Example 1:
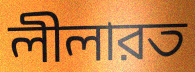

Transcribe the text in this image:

লীলারত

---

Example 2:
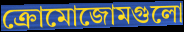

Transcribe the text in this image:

ক্রোমোজোমগুলো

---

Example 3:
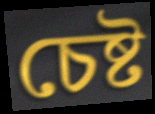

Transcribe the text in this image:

চেষ্ট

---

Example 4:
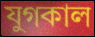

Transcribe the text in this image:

যুগকাল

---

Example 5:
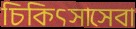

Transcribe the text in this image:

চিকিৎসাসেবা